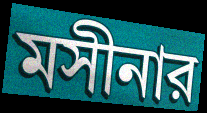
মসীনার